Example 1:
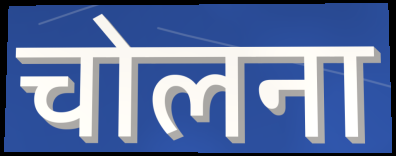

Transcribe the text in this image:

चोलना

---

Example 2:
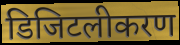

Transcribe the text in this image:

डिजिटलीकरण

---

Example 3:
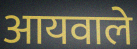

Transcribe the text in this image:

आयवाले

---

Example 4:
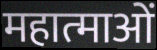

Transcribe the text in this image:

महात्‍माओं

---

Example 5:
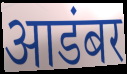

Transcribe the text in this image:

आडंबर